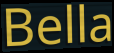
Bella